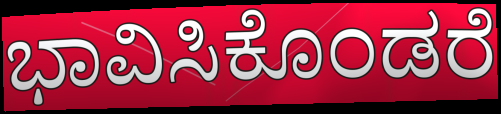
ಭಾವಿಸಿಕೊಂಡರೆ